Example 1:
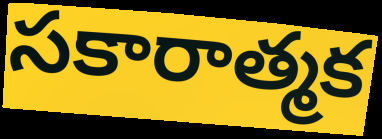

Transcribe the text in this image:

సకారాత్మక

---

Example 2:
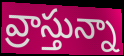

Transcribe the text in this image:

వ్రాస్తున్నా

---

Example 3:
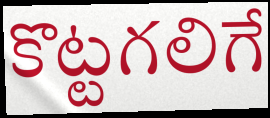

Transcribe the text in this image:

కొట్టగలిగే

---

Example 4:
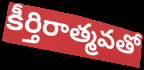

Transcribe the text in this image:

కీర్తిరాత్మవతో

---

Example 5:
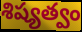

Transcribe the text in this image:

శిష్యత్వం